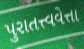
પુરાતત્ત્વવેત્તા